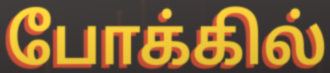
போக்கில்